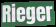
Rieger